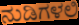
ನುಡಿಗಳಲಿ